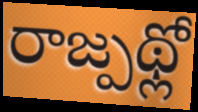
రాజ్పథ్లో